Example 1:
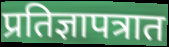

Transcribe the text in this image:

प्रतिज्ञापत्रात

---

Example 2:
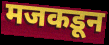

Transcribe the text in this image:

मजकडून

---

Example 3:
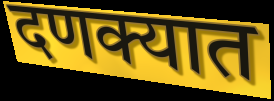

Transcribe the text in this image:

दणक्यात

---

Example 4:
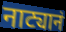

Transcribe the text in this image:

नाट्यानं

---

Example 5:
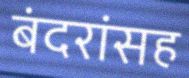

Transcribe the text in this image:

बंदरांसह